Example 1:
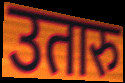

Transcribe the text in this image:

उतारु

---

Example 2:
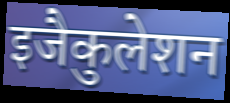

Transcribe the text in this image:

इजैकुलेशन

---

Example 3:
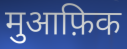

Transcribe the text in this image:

मुआफ़िक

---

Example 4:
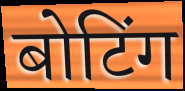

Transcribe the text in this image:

बोटिंग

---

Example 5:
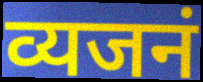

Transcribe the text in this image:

व्यजनं